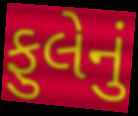
ફુલેનું